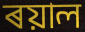
ৰয়াল